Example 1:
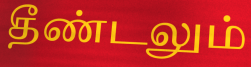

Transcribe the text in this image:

தீண்டலும்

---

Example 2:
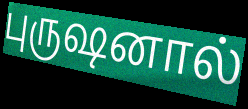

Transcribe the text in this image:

புருஷனால்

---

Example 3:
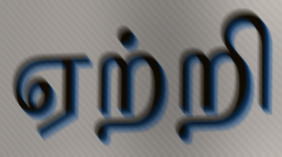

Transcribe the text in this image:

ஏற்றி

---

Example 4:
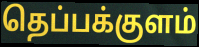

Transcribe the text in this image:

தெப்பக்குளம்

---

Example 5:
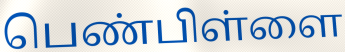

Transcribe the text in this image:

பெண்பிள்ளை